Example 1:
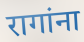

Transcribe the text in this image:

रागांना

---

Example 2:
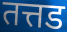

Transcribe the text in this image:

तत्तड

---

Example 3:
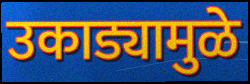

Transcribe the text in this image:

उकाड्यामुळे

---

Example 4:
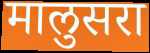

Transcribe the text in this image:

मालुसरा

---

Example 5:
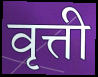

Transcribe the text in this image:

वृत्ती